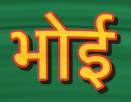
भोई